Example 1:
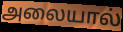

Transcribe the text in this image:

அலையால்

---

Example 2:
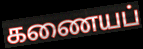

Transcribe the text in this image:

கணையப்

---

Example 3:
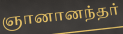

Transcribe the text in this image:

ஞானானந்தர்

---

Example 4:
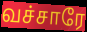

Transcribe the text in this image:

வச்சாரே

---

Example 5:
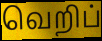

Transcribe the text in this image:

வெறிப்